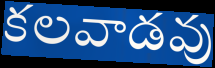
కలవాడవు